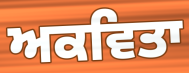
ਅਕਵਿਤਾ